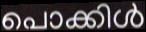
പൊക്കിൾ